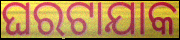
ଘରଟାଯାକ